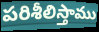
పరిశీలిస్తాము